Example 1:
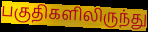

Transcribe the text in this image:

பகுதிகளிலிருந்து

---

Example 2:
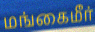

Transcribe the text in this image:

மங்கைமீர்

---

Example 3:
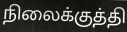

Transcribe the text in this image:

நிலைக்குத்தி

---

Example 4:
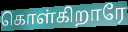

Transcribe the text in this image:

கொள்கிறாரே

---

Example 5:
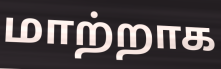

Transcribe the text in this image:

மாற்றாக